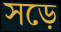
সড়ে